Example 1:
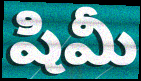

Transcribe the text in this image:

షిమీ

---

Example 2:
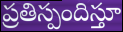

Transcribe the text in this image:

ప్రతిస్పందిస్తూ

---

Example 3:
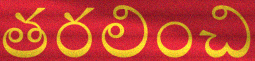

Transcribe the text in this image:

తరలించి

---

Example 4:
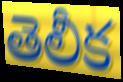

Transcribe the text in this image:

తెలీక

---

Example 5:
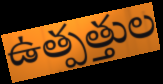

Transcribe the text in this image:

ఉత్పత్తుల